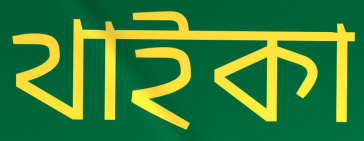
থাইকা